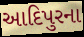
આદિપુરના